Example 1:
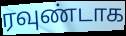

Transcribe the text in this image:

ரவுண்டாக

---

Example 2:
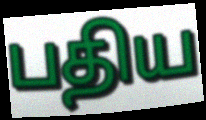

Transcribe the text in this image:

பதிய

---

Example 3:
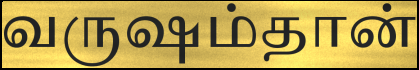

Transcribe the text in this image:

வருஷம்தான்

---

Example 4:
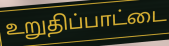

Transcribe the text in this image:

உறுதிப்பாட்டை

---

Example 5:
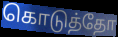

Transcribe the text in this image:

கொடுத்தோ